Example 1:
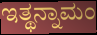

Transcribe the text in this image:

ಇತ್ಥನ್ನಾಮಂ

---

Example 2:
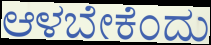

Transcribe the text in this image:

ಆಳಬೇಕೆಂದು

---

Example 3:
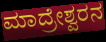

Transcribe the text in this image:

ಮಾದ್ರೇಶ್ವರನ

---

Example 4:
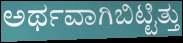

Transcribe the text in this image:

ಅರ್ಥವಾಗಿಬಿಟ್ಟಿತ್ತು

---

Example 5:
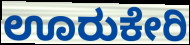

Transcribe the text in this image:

ಊರುಕೇರಿ